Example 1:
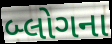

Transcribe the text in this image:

બ્લોગના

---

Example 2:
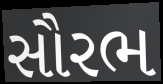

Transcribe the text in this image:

સૌરભ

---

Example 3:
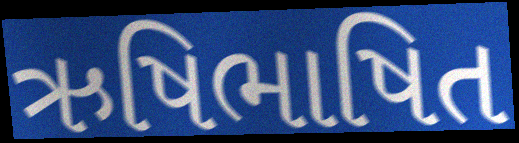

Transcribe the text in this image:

ઋષિભાષિત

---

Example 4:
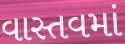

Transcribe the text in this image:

વાસ્તવમાં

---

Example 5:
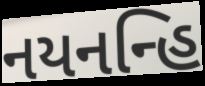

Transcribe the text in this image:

નયનન્હિ